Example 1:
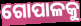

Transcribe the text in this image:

ଗୋପାଳକୁ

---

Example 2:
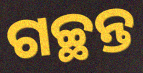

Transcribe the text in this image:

ଗଚ୍ଛନ୍ତ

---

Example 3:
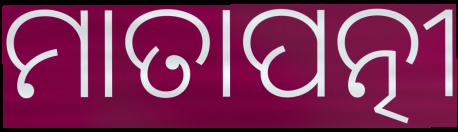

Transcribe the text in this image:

ମାତାପତ୍ନୀ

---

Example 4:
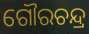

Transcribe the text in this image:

ଗୌରଚନ୍ଦ୍ର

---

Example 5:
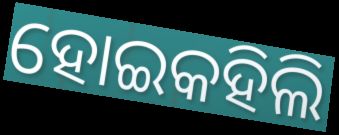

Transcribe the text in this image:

ହୋଇକହିଲି